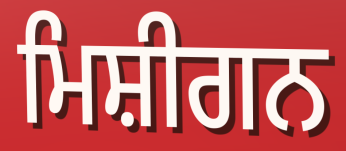
ਮਿਸ਼ੀਗਨ